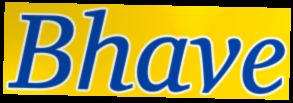
Bhave